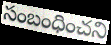
సంబంధించని